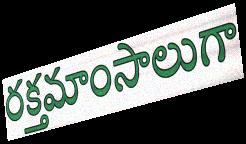
రక్తమాంసాలుగా